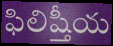
ఫిలిష్తీయ